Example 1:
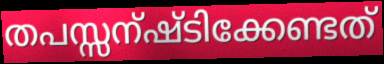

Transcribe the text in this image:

തപസ്സന്ഷ്ടിക്കേണ്ടത്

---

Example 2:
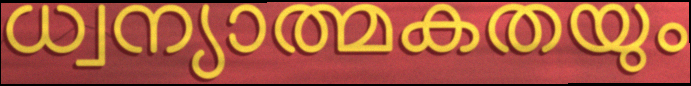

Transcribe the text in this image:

ധ്വന്യാത്മകതയും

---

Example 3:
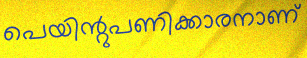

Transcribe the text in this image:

പെയിന്റുപണിക്കാരനാണ്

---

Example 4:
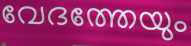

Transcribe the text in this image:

വേദത്തേയും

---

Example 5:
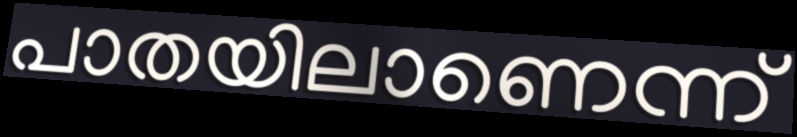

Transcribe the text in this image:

പാതയിലാണെന്ന്